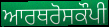
ਆਰਥਰੋਸਕੌਪੀ